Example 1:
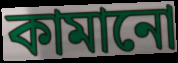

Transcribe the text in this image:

কামানো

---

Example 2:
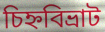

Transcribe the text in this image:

চিহ্নবিভ্রাট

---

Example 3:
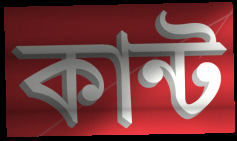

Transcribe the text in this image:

কান্ট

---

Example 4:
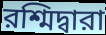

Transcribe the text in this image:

রশ্মিদ্বারা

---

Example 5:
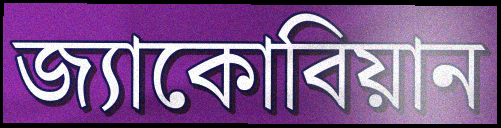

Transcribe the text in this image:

জ্যাকোবিয়ান